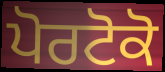
ਪੋਰਟੋਕੋ